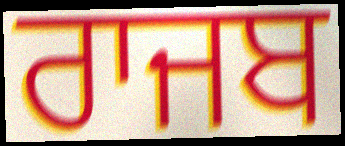
ਰਾਜਬ